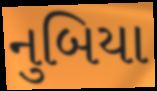
નુબિયા